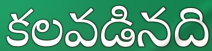
కలవడినది